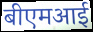
बीएमआई